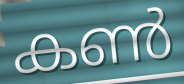
കൺ